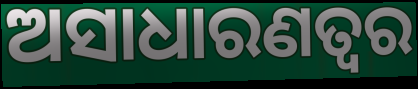
ଅସାଧାରଣତ୍ୱର